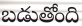
బడుతోంది